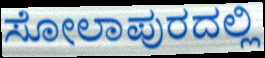
ಸೋಲಾಪುರದಲ್ಲಿ